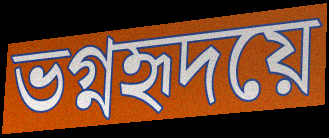
ভগ্নহৃদয়ে